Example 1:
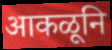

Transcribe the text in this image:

आकळूनि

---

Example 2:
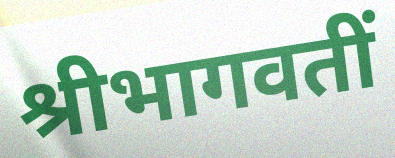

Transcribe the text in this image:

श्रीभागवतीं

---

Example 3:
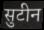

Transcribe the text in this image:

सुटीन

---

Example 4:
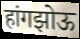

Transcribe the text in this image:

हांगझोऊ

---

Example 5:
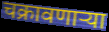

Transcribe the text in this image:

चक्रावणाऱ्या